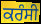
ਕਰੰਸੀ